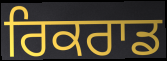
ਰਿਕਰਾਡ